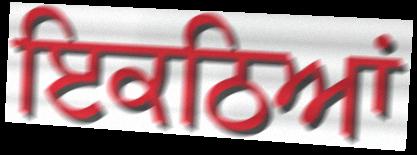
ਇਕਠਿਆਂ